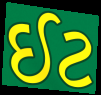
ઈટ